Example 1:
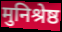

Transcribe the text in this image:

मुनिश्रेष्ठ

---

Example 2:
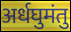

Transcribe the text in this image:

अर्धघुमंतु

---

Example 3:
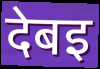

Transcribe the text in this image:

देबइ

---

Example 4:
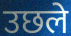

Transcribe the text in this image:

उछले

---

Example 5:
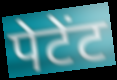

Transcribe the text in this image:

पेटेंट